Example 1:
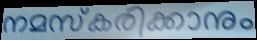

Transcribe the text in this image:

നമസ്കരിക്കാനും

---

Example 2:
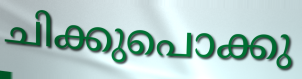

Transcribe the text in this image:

ചിക്കുപൊക്കു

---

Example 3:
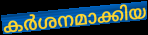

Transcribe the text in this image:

കർശനമാക്കിയ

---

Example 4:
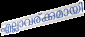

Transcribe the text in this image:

എല്ലാവര്ക്കുമായി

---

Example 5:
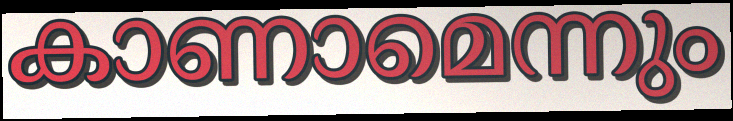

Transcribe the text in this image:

കാണാമെന്നും